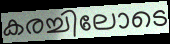
കരച്ചിലോടെ